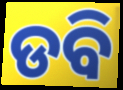
ଡବି